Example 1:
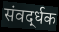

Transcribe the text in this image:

संवर्द्धक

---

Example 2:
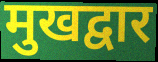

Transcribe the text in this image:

मुखद्वार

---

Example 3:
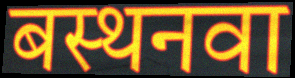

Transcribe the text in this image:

बस्थनवा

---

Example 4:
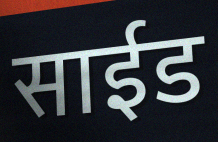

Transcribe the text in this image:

साईड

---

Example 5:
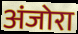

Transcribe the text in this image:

अंजोरा